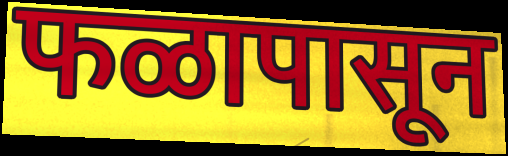
फळापासून